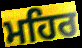
ਮਹਿਰ